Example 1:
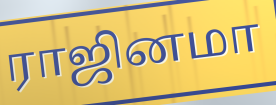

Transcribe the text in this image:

ராஜினமா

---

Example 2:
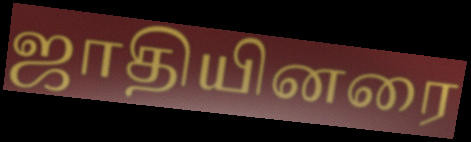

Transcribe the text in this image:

ஜாதியினரை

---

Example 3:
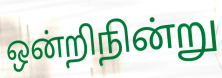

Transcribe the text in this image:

ஒன்றிநின்று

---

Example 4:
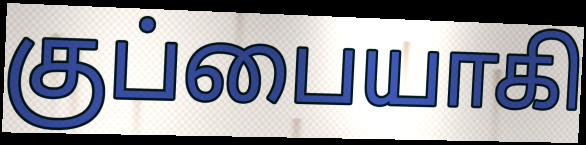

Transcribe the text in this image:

குப்பையாகி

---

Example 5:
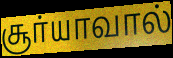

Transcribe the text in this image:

சூர்யாவால்